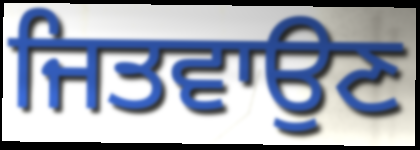
ਜਿਤਵਾਉਣ